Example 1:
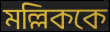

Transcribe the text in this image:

মল্লিককে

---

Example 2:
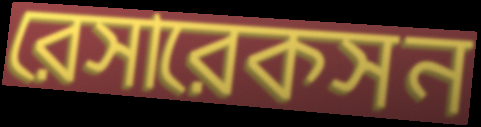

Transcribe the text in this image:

রেসারেকসন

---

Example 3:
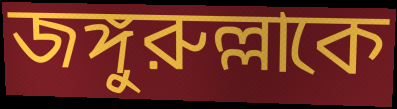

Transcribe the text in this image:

জঙ্গুরুল্লাকে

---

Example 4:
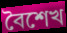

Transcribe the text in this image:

বৈশেখ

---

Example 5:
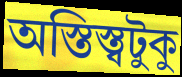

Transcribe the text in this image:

অস্তিস্ত্বটুকু